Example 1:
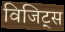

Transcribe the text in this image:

विजिट्स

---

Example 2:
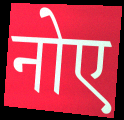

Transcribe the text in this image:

नोए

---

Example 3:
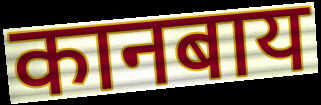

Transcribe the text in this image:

कानबाय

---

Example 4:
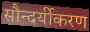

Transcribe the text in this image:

सौन्दर्यीकरण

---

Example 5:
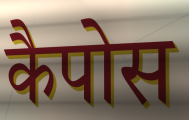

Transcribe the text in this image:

कैपोस